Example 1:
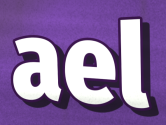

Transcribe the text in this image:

ael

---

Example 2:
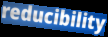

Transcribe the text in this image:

reducibility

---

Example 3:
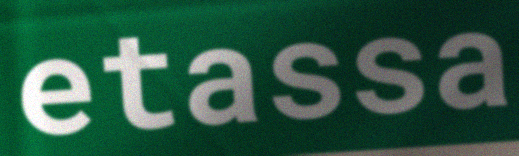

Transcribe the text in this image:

etassa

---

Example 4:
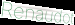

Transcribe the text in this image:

Renaudot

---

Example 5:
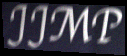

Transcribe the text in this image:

JJMP